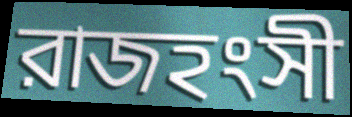
রাজহংসী